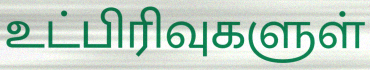
உட்பிரிவுகளுள்